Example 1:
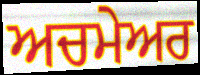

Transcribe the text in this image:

ਅਚਮੇਅਰ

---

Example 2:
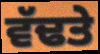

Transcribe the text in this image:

ਵੱਢਤੇ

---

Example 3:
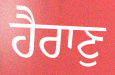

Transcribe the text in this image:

ਹੈਰਾਣੁ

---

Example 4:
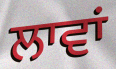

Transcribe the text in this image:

ਲਾਵਾਂ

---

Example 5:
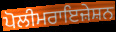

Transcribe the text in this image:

ਪੋਲੀਮਰਾਇਜ਼ੇਸ਼ਨ